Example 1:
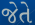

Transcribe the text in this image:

જેતે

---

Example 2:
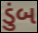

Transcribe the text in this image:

ડુંબ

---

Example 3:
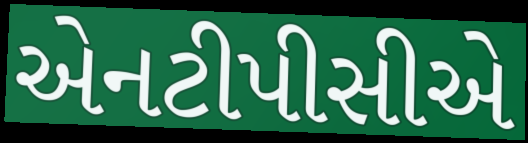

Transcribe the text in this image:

એનટીપીસીએ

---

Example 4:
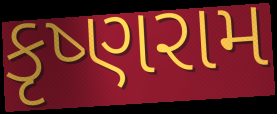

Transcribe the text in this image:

કૃષ્ણરામ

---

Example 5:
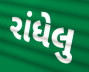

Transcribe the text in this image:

રાંધેલુ